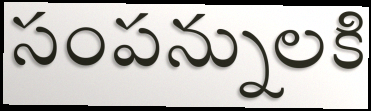
సంపన్నులకి